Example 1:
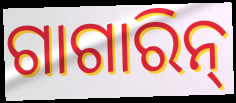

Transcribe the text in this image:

ଗାଗାରିନ୍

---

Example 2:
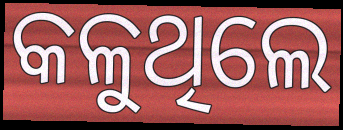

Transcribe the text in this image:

କଳୁଥିଲେ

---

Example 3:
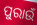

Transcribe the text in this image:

ପୁରାଉଁ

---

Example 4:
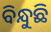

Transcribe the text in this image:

ବିନ୍ଧୁଛି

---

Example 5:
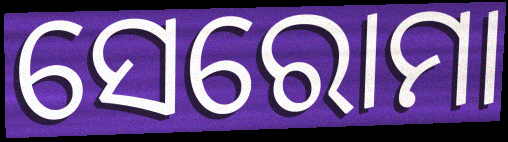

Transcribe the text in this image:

ସେରୋମା